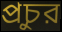
প্রচুর